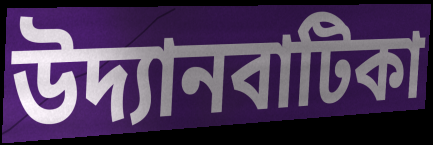
উদ্যানবাটিকা